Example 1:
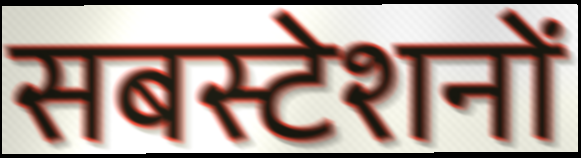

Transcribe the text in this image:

सबस्टेशनों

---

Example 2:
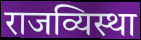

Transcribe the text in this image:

राजव्यिस्था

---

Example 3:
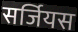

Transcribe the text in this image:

सर्जियस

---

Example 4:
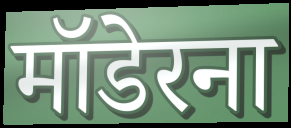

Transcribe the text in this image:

मॉडेरना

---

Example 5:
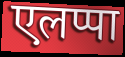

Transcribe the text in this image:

एलप्पा